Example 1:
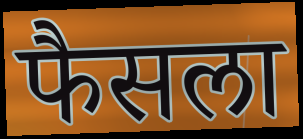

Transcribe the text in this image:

फैसला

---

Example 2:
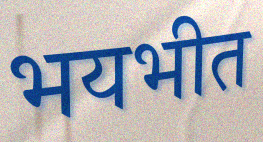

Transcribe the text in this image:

भयभीत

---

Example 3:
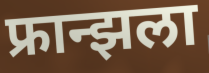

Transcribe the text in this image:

फ्रान्झला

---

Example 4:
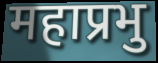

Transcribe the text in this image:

महाप्रभु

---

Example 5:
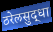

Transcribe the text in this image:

ठरेलसुद्धा